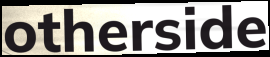
otherside